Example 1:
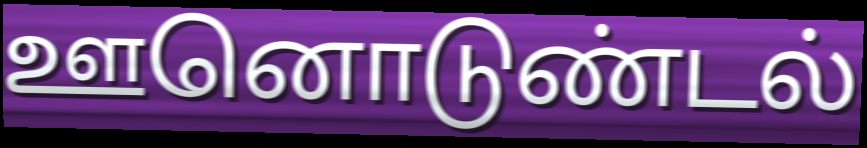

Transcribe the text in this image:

ஊனொடுண்டல்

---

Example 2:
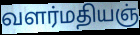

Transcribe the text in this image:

வளர்மதியஞ்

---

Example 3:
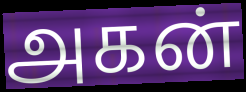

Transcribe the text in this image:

அகன்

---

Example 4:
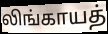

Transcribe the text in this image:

லிங்காயத்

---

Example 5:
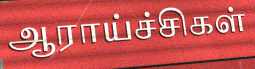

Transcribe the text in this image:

ஆராய்ச்சிகள்